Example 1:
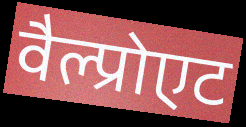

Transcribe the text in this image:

वैल्प्रोएट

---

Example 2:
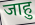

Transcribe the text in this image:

जाहु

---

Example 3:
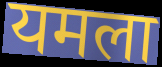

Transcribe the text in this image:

यमला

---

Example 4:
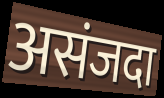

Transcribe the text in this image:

असंजदा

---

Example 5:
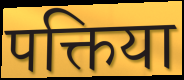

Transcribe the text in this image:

पक्तिया